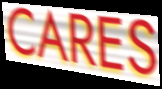
CARES